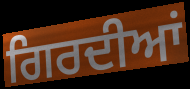
ਗਿਰਦੀਆਂ